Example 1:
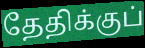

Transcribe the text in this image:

தேதிக்குப்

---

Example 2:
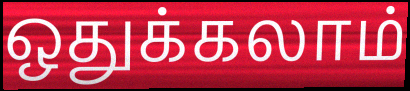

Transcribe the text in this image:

ஒதுக்கலாம்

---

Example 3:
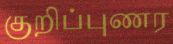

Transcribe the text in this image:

குறிப்புணர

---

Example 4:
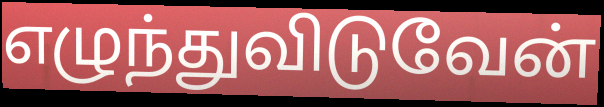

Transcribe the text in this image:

எழுந்துவிடுவேன்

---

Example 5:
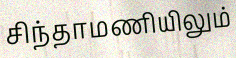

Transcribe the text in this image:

சிந்தாமணியிலும்